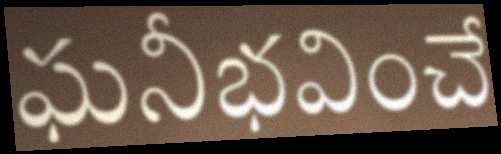
ఘనీభవించే